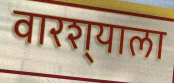
वारश्याला